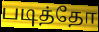
படித்தோ